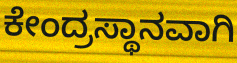
ಕೇಂದ್ರಸ್ಥಾನವಾಗಿ